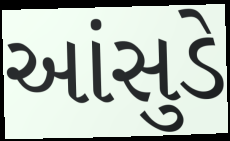
આંસુડે